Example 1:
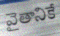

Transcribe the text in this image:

వైతానికే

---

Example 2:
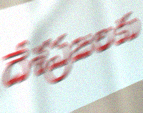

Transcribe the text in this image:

దేశప్రజలకు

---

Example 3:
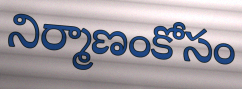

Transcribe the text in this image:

నిర్మాణంకోసం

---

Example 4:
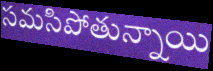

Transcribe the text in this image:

సమసిపోతున్నాయి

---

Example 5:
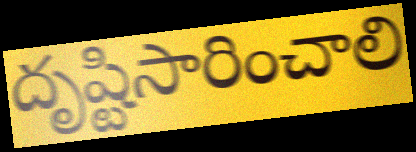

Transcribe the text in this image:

దృష్టిసారించాలి